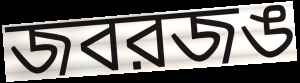
জবরজঙ